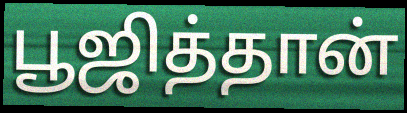
பூஜித்தான்